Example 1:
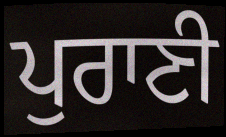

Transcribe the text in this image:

ਪੁਰਾਣੀ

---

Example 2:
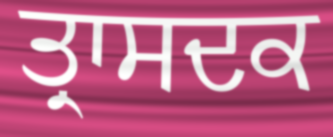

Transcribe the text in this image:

ਤ੍ਰਾਸਦਕ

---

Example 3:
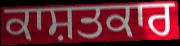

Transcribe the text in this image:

ਕਾਸ਼ਤਕਾਰ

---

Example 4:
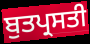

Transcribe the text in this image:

ਬੁਤਪ੍ਰਸਤੀ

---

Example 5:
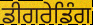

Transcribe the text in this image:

ਡੀਗਰੇਡਿੰਗ